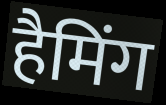
हैमिंग